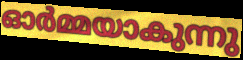
ഓർമ്മയാകുന്നു